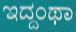
ಇದ್ದಂಥಾ